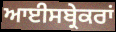
ਆਈਸਬ੍ਰੇਕਰਾਂ